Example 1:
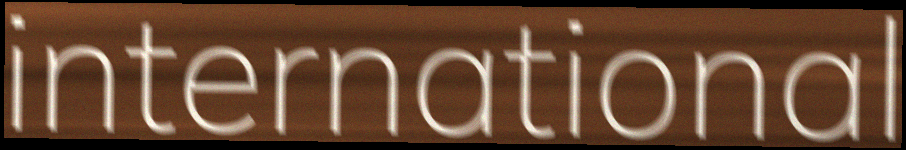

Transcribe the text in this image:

international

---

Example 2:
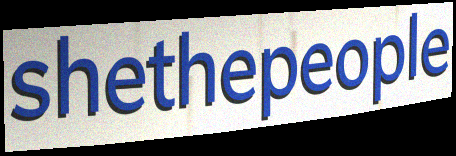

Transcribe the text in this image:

shethepeople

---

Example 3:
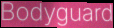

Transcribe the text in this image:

Bodyguard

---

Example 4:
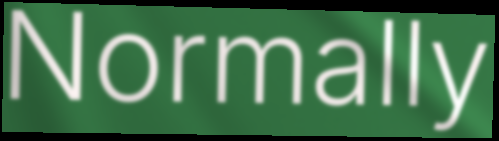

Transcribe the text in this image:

Normally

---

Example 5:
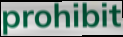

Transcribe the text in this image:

prohibit